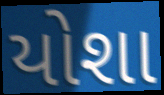
યોશા